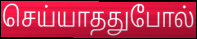
செய்யாததுபோல்